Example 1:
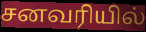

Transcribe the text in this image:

சனவரியில்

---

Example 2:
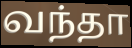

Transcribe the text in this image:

வந்தா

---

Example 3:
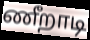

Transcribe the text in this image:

ணீறாடி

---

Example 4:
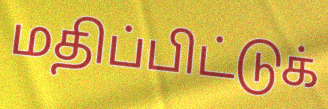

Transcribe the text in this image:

மதிப்பிட்டுக்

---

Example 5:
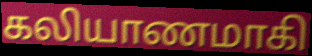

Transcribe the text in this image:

கலியாணமாகி